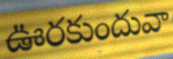
ఊరకుందువా